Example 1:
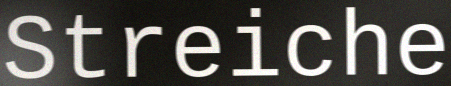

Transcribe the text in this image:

Streiche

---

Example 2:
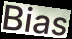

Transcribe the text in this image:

Bias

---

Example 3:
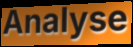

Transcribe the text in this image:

Analyse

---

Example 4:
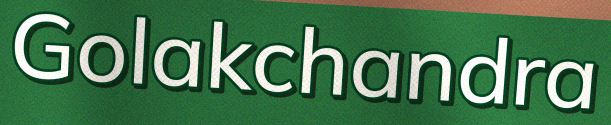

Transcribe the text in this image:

Golakchandra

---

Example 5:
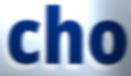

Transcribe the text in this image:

cho